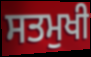
ਸਤਮੁਖੀ